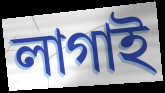
লাগাই